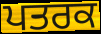
ਪਤਰਕ